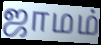
ஜாமம்